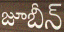
జూబీన్